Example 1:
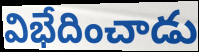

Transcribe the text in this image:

విభేదించాడు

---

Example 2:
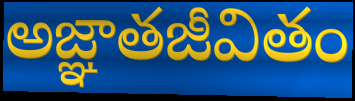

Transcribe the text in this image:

అజ్ఞాతజీవితం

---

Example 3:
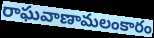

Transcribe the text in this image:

రాఘవాణామలంకారం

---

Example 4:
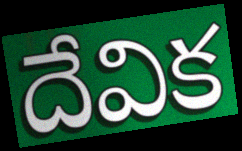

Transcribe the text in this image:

దేవిక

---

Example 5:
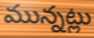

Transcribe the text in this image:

మున్నట్లు